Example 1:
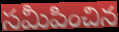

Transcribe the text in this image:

సమీపించిన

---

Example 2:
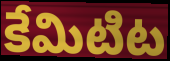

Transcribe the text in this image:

కేమిటిట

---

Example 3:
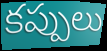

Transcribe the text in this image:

కప్పులు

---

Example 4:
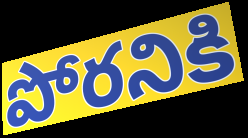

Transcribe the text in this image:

పోరనికి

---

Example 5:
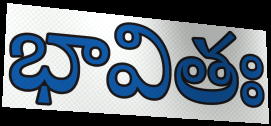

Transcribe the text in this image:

భావితః